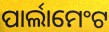
ପାର୍ଲାମେଂଟ